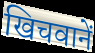
खिचवानें